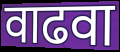
वाढवा